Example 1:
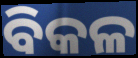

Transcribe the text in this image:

ବିକଳ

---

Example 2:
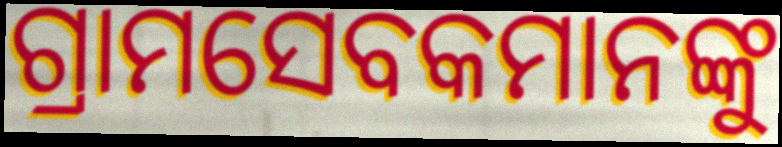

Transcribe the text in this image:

ଗ୍ରାମସେବକମାନଙ୍କୁ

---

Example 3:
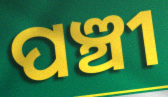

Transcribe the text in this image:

ପଞ୍ଚୀ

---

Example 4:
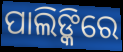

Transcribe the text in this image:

ପାଲିଙ୍କିରେ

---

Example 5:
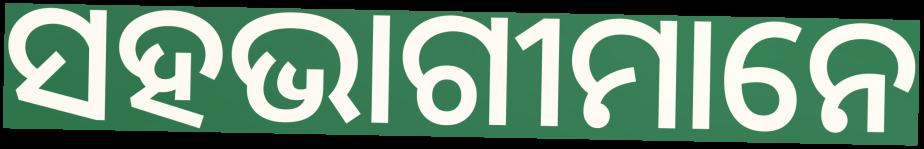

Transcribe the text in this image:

ସହଭାଗୀମାନେ